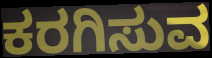
ಕರಗಿಸುವ